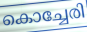
കൊച്ചേരി